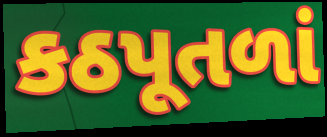
કઠપૂતળાં